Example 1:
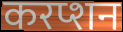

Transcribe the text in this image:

करप्‍शन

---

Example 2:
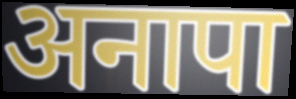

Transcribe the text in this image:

अनापा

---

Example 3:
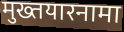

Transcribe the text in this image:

मुख्तयारनामा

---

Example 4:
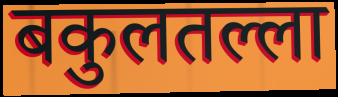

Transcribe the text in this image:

बकुलतल्ला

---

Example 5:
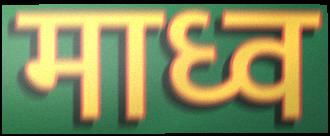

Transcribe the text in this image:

माध्व